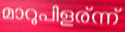
മാറുപിളര്ന്ന്